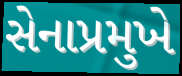
સેનાપ્રમુખે